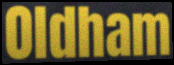
Oldham